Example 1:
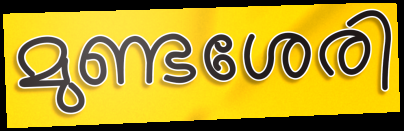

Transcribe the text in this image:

മുണ്ടശേരി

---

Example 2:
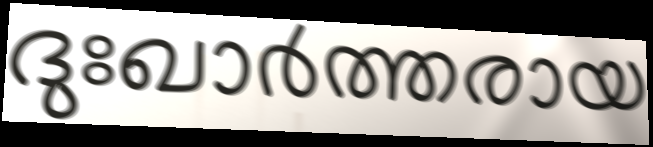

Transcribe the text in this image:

ദുഃഖാർത്തരായ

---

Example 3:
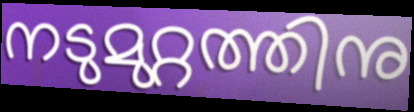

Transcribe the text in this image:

നടുമുറ്റത്തിനു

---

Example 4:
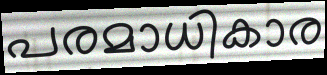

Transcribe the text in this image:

പരമാധികാര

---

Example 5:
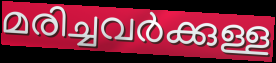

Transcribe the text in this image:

മരിച്ചവർക്കുള്ള